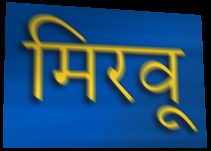
मिरवू